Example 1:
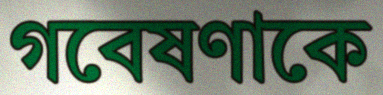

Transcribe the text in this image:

গবেষণাকে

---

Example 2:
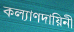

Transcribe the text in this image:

কল্যাণদায়িনী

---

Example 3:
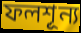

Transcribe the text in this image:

ফলশূন্য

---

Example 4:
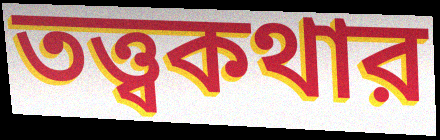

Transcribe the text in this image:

তত্ত্বকথার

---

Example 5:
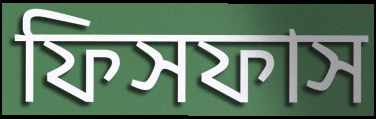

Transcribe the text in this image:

ফিসফাস